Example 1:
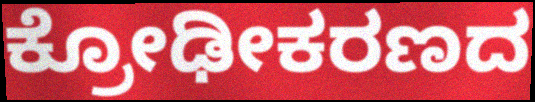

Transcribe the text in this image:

ಕ್ರೋಢೀಕರಣದ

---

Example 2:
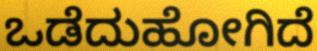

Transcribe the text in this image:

ಒಡೆದುಹೋಗಿದೆ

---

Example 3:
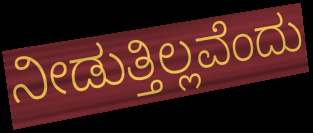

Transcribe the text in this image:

ನೀಡುತ್ತಿಲ್ಲವೆಂದು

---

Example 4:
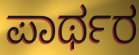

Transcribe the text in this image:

ಪಾರ್ಥರ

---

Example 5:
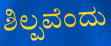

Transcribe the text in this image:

ಶಿಲ್ಪವೆಂದು